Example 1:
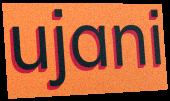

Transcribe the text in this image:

ujani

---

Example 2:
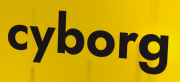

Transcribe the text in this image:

cyborg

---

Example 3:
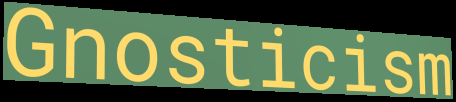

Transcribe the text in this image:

Gnosticism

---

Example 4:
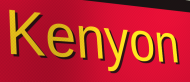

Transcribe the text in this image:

Kenyon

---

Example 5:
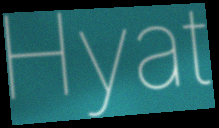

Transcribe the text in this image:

Hyat